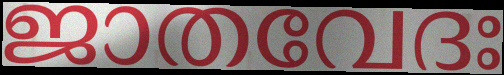
ജാതവേദഃ